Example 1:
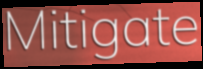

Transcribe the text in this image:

Mitigate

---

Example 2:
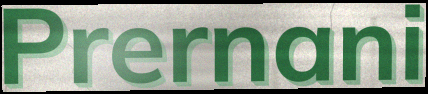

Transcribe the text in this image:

Prernani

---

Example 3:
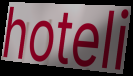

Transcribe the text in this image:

hoteli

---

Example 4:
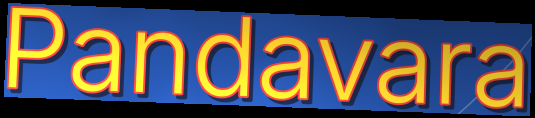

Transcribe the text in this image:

Pandavara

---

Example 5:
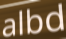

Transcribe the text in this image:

albd